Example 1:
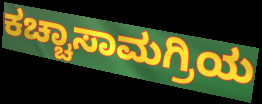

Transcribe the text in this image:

ಕಚ್ಚಾಸಾಮಗ್ರಿಯ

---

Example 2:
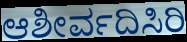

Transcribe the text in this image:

ಆಶೀರ್ವದಿಸಿರಿ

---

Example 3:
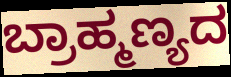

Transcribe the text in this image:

ಬ್ರಾಹ್ಮಣ್ಯದ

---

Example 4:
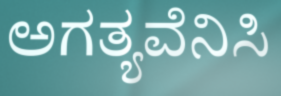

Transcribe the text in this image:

ಅಗತ್ಯವೆನಿಸಿ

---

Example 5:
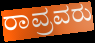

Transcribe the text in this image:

ರಾವ್ರವರು